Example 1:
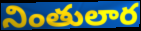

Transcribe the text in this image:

నింతులార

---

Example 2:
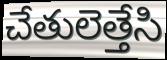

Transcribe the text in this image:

చేతులెత్తేసి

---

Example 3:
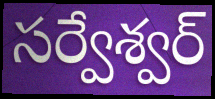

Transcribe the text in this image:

సర్వేశ్వర్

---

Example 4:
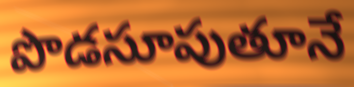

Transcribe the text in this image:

పొడసూపుతూనే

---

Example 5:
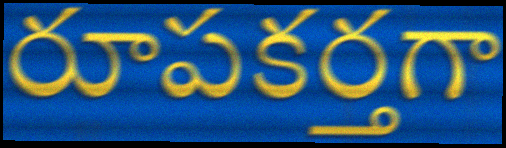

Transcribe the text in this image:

రూపకర్తగా